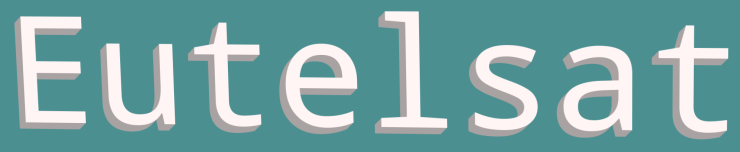
Eutelsat